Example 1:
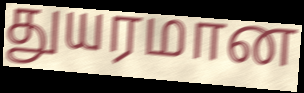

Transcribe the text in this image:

துயரமான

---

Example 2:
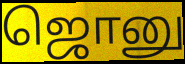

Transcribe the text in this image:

ஜொனு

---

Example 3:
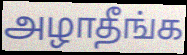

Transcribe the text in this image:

அழாதீங்க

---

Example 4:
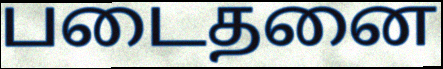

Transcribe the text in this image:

படைதனை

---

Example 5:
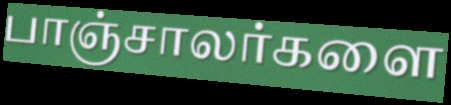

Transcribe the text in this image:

பாஞ்சாலர்களை